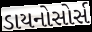
ડાયનોસોર્સ